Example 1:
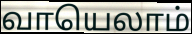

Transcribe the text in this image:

வாயெலாம்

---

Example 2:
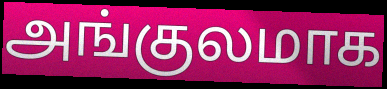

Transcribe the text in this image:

அங்குலமாக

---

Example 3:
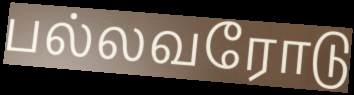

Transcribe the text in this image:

பல்லவரோடு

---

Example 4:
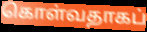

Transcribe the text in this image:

கொள்வதாகப்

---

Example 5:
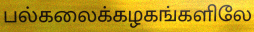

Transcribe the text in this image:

பல்கலைக்கழகங்களிலே